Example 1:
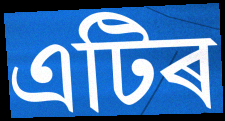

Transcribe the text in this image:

এটিৰ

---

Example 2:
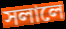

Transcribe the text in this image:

সলালে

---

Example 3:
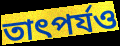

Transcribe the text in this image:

তাৎপৰ্যও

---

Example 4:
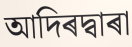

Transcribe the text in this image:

আদিৰদ্বাৰা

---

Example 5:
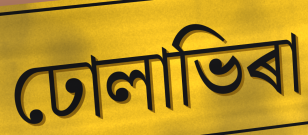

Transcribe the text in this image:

ঢোলাভিৰা